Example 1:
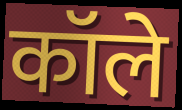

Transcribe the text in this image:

कॉले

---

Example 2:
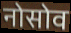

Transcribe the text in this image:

नोसोव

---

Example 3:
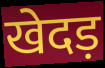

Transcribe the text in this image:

खेदड़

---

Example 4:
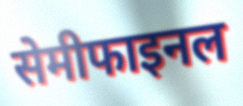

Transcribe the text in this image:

सेमीफाइनल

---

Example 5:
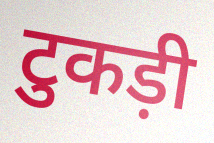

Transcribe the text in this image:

टुकड़ी